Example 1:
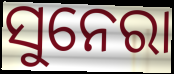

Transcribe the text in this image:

ସୁନେରା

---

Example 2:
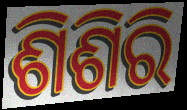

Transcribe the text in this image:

ଶିଶିରି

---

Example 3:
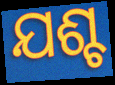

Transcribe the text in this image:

ଯଶ୍ଚ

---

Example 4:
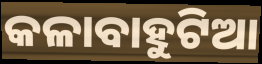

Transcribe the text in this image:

କଳାବାହୁଟିଆ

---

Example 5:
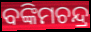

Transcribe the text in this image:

ବଙ୍କିମଚନ୍ଦ୍ର